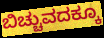
ಬಿಚ್ಚುವದಕ್ಕೂ